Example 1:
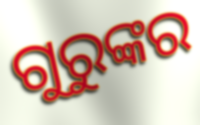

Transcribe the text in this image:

ଗୁରୁଙ୍କର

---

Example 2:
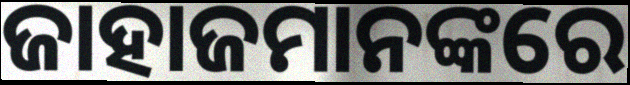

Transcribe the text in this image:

ଜାହାଜମାନଙ୍କରେ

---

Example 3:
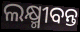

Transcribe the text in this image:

ଲକ୍ଷ୍ମୀବନ୍ତ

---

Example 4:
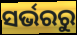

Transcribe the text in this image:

ସର୍ଭରରୁ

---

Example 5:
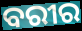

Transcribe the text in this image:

ବରୀର